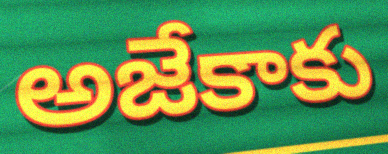
అజేకాకు